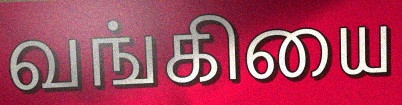
வங்கியை